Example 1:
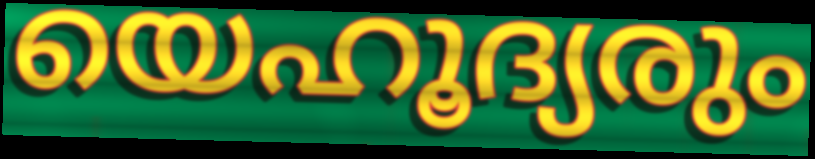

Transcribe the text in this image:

യെഹൂദ്യരും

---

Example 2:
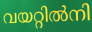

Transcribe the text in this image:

വയറ്റിൽനി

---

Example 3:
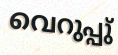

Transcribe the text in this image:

വെറുപ്പു്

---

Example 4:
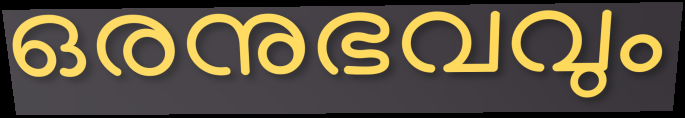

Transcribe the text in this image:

ഒരനുഭവവും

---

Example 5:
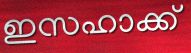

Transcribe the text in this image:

ഇസഹാക്ക്